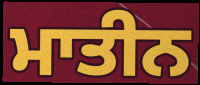
ਮਾਤੀਨ